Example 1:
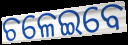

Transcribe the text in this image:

ଚଳେଇବେ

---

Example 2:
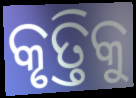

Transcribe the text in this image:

କୃତ୍ତିକୁ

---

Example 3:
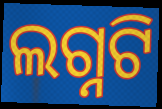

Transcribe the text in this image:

ଲଗ୍ନଟି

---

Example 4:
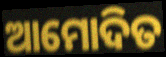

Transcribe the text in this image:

ଆମୋଦିତ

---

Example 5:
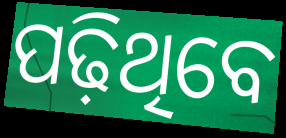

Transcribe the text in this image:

ପଢ଼ିଥିବେ